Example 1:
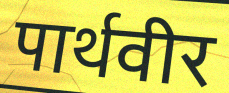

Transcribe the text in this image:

पार्थवीर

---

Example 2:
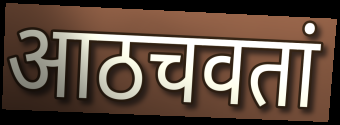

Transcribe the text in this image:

आठचवतां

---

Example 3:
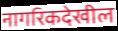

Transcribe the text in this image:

नागरिकदेखील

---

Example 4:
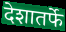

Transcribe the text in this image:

देशातर्फे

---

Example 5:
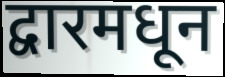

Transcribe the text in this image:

द्वारमधून